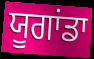
ਯੂਗਾਂਡਾ